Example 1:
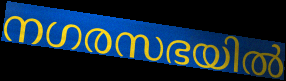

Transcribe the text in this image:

നഗരസഭയിൽ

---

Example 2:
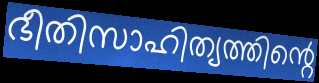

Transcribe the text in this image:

ഭീതിസാഹിത്യത്തിന്റെ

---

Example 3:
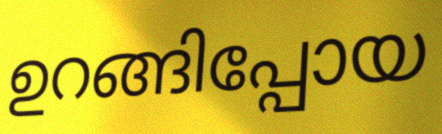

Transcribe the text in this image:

ഉറങ്ങിപ്പോയ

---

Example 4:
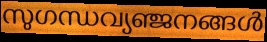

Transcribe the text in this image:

സുഗന്ധവ്യഞ്ജനങ്ങൾ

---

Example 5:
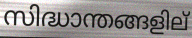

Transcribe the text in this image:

സിദ്ധാന്തങ്ങളില്